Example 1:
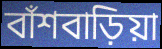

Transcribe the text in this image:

বাঁশবাড়িয়া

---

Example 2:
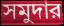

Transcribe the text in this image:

সমুদার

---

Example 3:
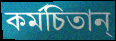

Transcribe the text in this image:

কর্মচিতান্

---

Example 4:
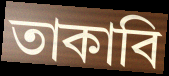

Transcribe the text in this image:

তাকাবি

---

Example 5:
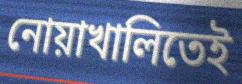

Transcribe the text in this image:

নোয়াখালিতেই